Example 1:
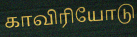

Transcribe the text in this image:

காவிரியோடு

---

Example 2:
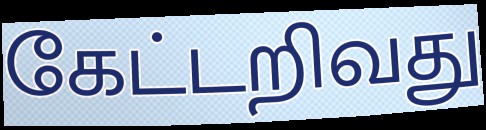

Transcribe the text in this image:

கேட்டறிவது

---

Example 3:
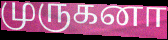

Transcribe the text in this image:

முருகனா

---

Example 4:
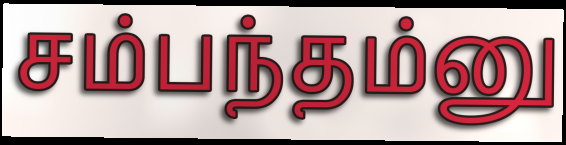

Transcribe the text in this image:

சம்பந்தம்னு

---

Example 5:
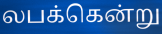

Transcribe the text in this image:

லபக்கென்று